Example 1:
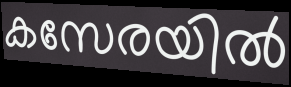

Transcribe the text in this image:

കസേരയിൽ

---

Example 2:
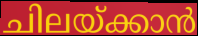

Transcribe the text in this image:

ചിലയ്ക്കാൻ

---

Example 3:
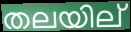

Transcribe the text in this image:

തലയില്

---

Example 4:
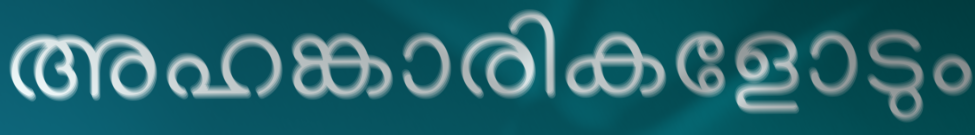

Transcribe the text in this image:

അഹങ്കാരികളോടും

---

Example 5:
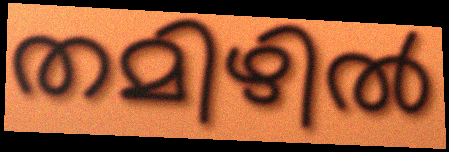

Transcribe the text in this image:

തമിഴിൽ